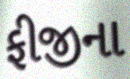
ફીજીના